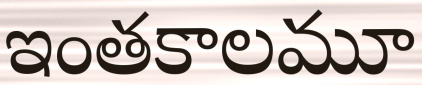
ఇంతకాలమూ